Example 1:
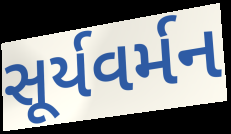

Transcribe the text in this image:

સૂર્યવર્મન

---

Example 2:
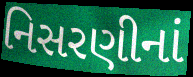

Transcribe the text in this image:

નિસરણીનાં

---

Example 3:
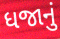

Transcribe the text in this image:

ધજાનું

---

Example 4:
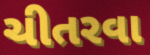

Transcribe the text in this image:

ચીતરવા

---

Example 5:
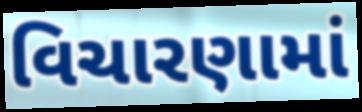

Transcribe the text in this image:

વિચારણામાં